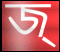
জ্